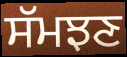
ਸੱਮਝਣ